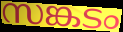
സങ്കടം